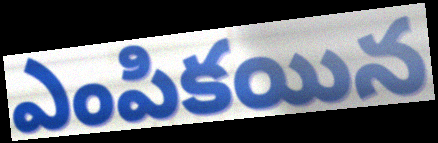
ఎంపికయిన